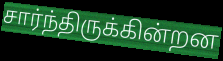
சார்ந்திருக்கின்றன